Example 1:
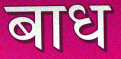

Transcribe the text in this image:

बाध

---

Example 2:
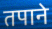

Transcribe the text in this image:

तपाने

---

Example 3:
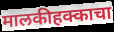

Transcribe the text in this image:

मालकीहक्काचा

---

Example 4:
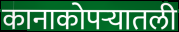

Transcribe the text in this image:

कानाकोपऱ्यातली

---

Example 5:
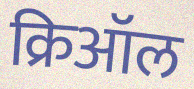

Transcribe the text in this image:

क्रिऑल